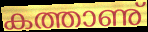
കത്താണു്